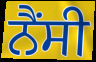
ਨੈਂਸੀ